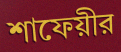
শাফেয়ীর